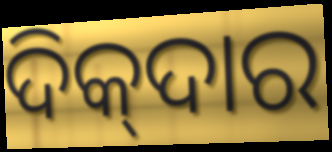
ଦିକ୍‍ଦାର